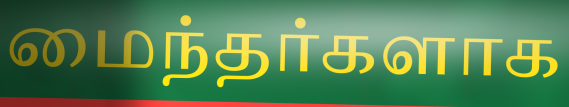
மைந்தர்களாக